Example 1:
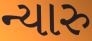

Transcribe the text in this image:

ન્યારુ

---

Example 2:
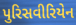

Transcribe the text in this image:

પુરિસવીરિયેન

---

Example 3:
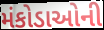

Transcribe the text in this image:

મંકોડાઓની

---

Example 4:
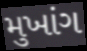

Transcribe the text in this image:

મુખાંગ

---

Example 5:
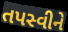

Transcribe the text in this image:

તપસ્વીને